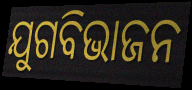
ଯୁଗବିଭାଜନ